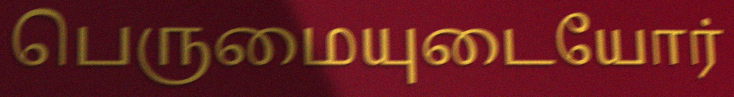
பெருமையுடையோர்